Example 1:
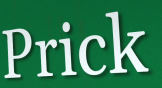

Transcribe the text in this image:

Prick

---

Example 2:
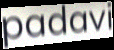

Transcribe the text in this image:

padavi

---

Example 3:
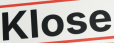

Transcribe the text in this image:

Klose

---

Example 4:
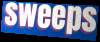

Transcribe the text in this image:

sweeps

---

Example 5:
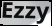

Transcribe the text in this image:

Ezzy